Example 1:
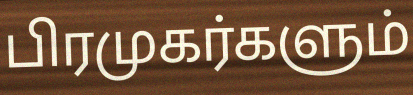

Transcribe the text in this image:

பிரமுகர்களும்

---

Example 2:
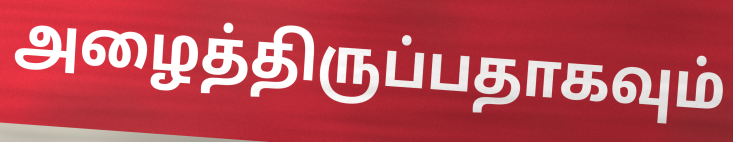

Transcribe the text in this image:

அழைத்திருப்பதாகவும்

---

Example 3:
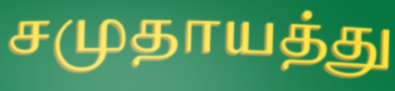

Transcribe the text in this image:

சமுதாயத்து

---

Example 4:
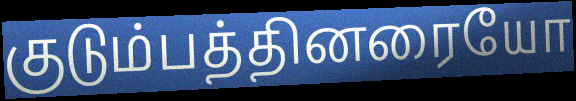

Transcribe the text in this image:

குடும்பத்தினரையோ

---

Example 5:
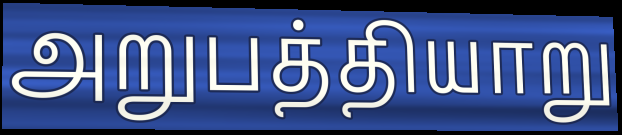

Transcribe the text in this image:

அறுபத்தியாறு